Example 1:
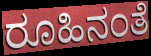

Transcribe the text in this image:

ರೂಹಿನಂತೆ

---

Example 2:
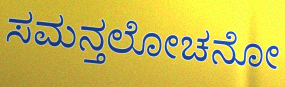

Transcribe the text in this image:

ಸಮನ್ತಲೋಚನೋ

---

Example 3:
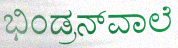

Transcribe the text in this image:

ಭಿಂಡ್ರನ್‌ವಾಲೆ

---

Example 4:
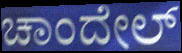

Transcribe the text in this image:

ಚಾಂದೇಲ್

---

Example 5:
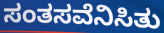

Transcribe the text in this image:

ಸಂತಸವೆನಿಸಿತು